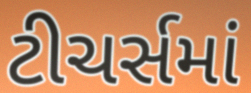
ટીચર્સમાં